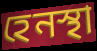
হেনস্থা